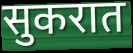
सुकरात